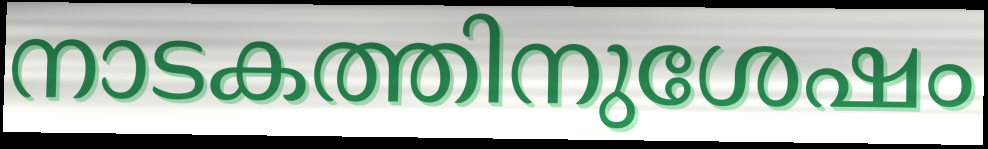
നാടകത്തിനുശേഷം